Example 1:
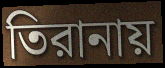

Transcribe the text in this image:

তিরানায়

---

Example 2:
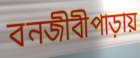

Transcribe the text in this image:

বনজীবীপাড়ায়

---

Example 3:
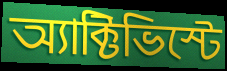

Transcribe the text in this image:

অ্যাক্টিভিস্টে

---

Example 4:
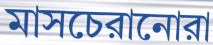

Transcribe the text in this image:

মাসচেরানোরা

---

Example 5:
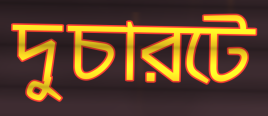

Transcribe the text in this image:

দুচারটে